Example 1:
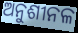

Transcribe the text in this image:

ଅନୁଶୀନଳ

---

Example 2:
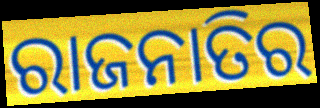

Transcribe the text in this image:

ରାଜନାତିର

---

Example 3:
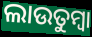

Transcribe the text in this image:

ଲାଉତୁମ୍ବା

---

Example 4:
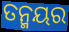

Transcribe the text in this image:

ତନ୍ମୟର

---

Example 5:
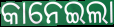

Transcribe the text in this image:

କାନେଇଲା